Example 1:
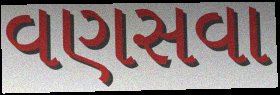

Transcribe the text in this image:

વણસવા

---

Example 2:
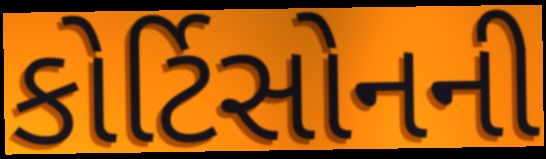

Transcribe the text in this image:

કોર્ટિસોનની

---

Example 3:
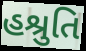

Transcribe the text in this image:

હશ્રુતિ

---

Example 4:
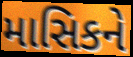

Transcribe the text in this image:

માસિકને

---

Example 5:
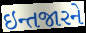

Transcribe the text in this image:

ઇન્તજારને